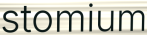
stomium